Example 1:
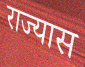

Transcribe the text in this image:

राज्यास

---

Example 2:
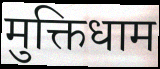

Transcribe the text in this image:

मुक्तिधाम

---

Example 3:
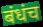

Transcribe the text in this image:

बंधंच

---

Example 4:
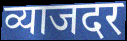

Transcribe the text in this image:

व्याजदर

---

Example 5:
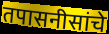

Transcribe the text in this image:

तपासनीसांचे